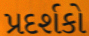
પ્રદર્શકો